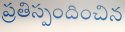
ప్రతిస్పందించిన